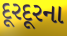
દૂરદૂરના